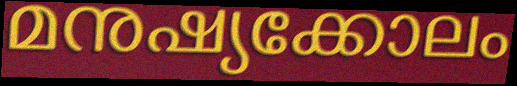
മനുഷ്യക്കോലം